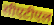
सीएटीएल